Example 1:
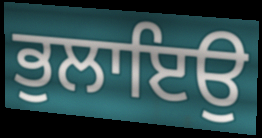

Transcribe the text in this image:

ਭੁਲਾਇਉ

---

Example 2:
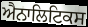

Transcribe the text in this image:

ਐਨਾਲਿਟਿਕਸ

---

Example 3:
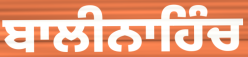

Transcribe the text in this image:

ਬਾਲੀਨਾਹਿੰਚ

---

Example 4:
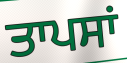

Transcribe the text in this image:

ਤਾਪਸਾਂ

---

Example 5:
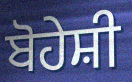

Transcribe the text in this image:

ਬੋਹੇਸ਼ੀ